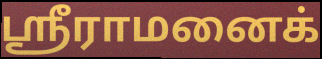
ஸ்ரீராமனைக்